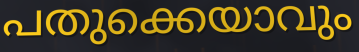
പതുക്കെയാവും